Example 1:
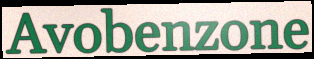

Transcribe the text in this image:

Avobenzone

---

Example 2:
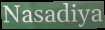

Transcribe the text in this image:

Nasadiya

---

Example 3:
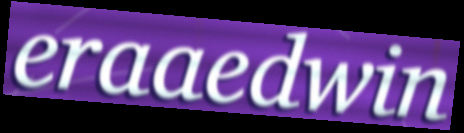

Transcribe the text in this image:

eraaedwin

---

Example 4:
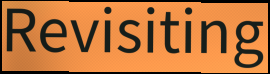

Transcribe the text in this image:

Revisiting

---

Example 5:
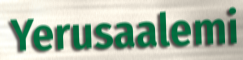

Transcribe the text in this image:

Yerusaalemi